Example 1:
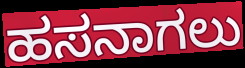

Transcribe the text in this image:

ಹಸನಾಗಲು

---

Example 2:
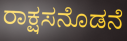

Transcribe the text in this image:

ರಾಕ್ಷಸನೊಡನೆ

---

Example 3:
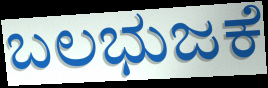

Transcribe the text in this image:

ಬಲಭುಜಕೆ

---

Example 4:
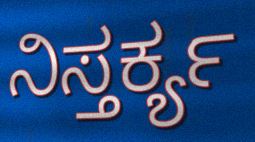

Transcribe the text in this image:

ನಿಸ್ತರ್ಕ್ಯ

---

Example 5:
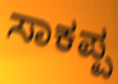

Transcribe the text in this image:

ಸಾಕಪ್ಪ